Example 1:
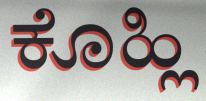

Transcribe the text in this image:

ಕೊಹ್ಲಿ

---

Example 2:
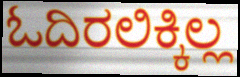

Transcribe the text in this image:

ಓದಿರಲಿಕ್ಕಿಲ್ಲ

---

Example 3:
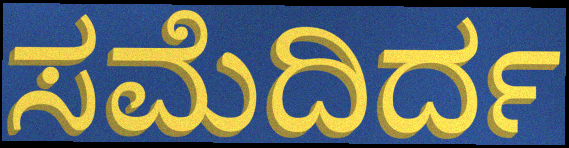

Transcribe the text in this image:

ಸಮೆದಿರ್ದ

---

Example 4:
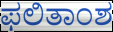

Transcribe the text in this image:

ಫಲಿತಾಂಶ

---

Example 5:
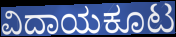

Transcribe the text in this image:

ವಿದಾಯಕೂಟ